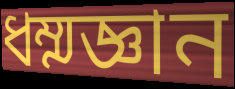
ধম্মজ্ঞান